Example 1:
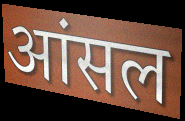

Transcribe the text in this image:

आंसल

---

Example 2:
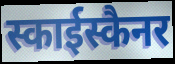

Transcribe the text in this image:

स्काईस्कैनर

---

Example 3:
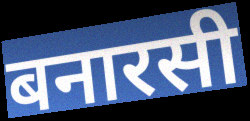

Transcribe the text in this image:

बनारसी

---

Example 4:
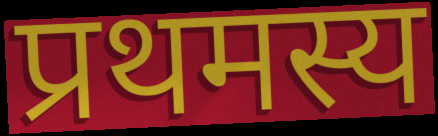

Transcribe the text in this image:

प्रथमस्य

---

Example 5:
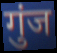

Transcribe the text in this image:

गुंज